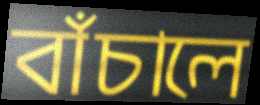
বাঁচালে